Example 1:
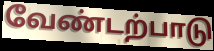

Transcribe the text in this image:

வேண்டற்பாடு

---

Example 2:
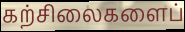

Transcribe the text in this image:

கற்சிலைகளைப்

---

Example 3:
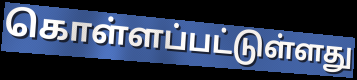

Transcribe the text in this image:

கொள்ளப்பட்டுள்ளது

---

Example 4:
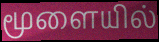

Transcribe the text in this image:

மூளையில்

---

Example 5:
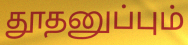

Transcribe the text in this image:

தூதனுப்பும்